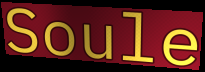
Soule